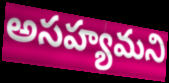
అసహ్యమని